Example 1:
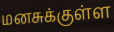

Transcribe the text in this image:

மனசுக்குள்ள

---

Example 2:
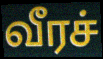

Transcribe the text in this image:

வீரச்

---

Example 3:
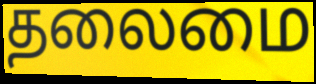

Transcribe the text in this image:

தலைமை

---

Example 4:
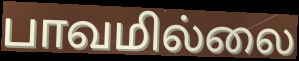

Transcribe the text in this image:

பாவமில்லை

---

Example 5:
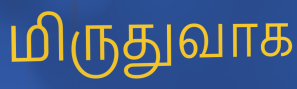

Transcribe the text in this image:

மிருதுவாக